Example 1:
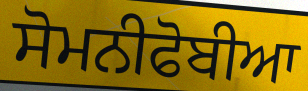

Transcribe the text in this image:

ਸੋਮਨੀਫੋਬੀਆ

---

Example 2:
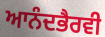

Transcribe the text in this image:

ਆਨੰਦਭੈਰਵੀ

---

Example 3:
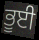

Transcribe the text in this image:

ਭੂਈ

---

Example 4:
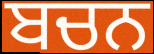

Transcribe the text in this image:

ਬਚਨ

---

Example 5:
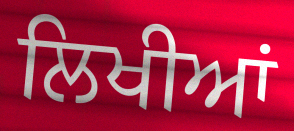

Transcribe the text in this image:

ਲਿਖੀਆਂ